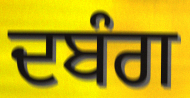
ਦਬੰਗ